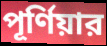
পূর্ণিয়ার